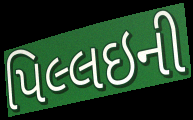
પિલ્લઇની